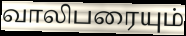
வாலிபரையும்